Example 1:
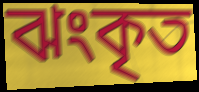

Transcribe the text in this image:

ঝংকৃত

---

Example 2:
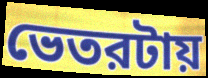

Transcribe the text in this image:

ভেতরটায়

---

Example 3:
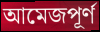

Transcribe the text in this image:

আমেজপূর্ণ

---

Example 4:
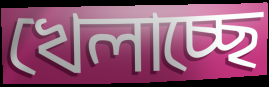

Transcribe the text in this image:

খেলাচ্ছে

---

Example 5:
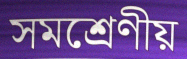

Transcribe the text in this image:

সমশ্রেণীয়